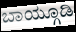
ಬಾಯ್ಗೂಡಿ